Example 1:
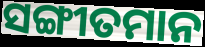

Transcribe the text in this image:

ସଙ୍ଗୀତମାନ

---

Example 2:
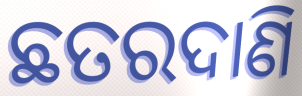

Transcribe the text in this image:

ଛତରଦାଣି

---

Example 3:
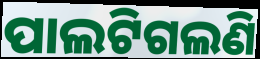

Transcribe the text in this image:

ପାଲଟିଗଲଣି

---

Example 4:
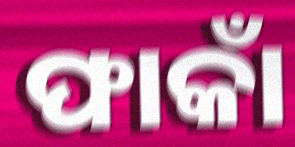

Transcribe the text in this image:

ଫାକାଁ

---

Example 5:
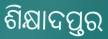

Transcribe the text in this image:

ଶିକ୍ଷାଦପ୍ତର